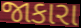
જાકારા